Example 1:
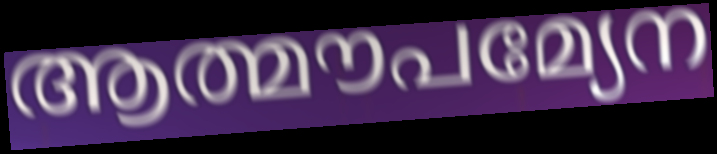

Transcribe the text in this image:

ആത്മൗപമ്യേന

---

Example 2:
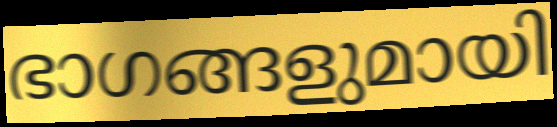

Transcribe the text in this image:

ഭാഗങ്ങളുമായി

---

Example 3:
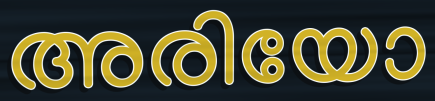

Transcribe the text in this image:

അരിയോ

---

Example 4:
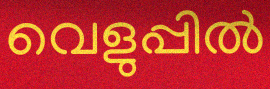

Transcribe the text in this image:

വെളുപ്പിൽ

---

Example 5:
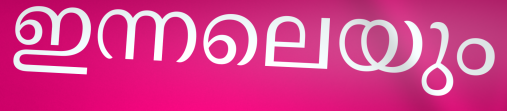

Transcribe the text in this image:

ഇന്നലെയും